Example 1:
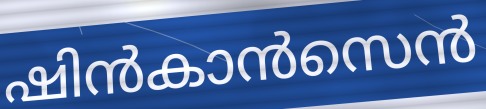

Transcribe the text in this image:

ഷിൻകാൻസെൻ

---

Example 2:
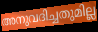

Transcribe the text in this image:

അനുവദിച്ചതുമില്ല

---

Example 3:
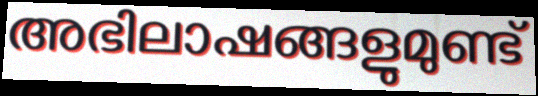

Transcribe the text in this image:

അഭിലാഷങ്ങളുമുണ്ട്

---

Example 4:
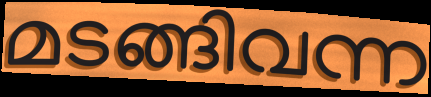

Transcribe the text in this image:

മടങ്ങിവന്ന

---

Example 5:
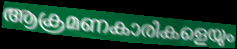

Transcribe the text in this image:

ആക്രമണകാരികളെയും